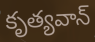
కృత్యవాన్